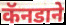
कॅनडाने